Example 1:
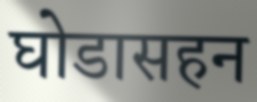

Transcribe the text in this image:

घोडासहन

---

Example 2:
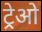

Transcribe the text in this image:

ट्रेओ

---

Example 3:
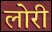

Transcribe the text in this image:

लोरी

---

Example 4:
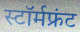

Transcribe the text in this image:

स्टॉर्मफ्रंट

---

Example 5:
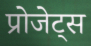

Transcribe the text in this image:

प्रोजेट्स